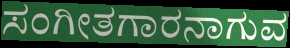
ಸಂಗೀತಗಾರನಾಗುವ